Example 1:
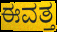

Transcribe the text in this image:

ಈವತ್ತ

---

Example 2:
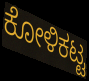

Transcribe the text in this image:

ಕೋಳಿಕಟ್ಟ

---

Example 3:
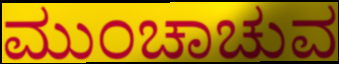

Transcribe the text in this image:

ಮುಂಚಾಚುವ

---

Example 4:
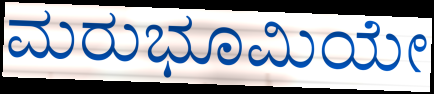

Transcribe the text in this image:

ಮರುಭೂಮಿಯೇ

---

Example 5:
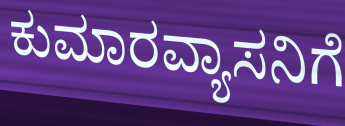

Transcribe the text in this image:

ಕುಮಾರವ್ಯಾಸನಿಗೆ